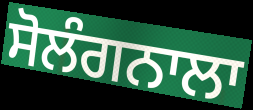
ਸੋਲੰਗਨਾਲਾ